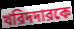
খরিদদারকে